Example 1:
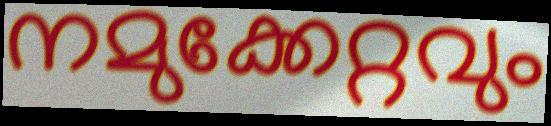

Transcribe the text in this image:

നമുക്കേറ്റവും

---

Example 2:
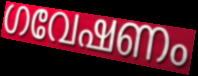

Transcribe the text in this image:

ഗവേഷണം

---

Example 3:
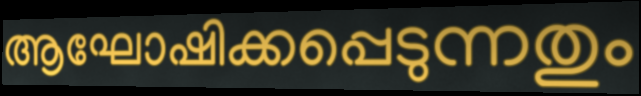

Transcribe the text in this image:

ആഘോഷിക്കപ്പെടുന്നതും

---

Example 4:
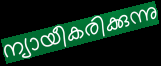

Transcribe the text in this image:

ന്യായീകരിക്കുന്നു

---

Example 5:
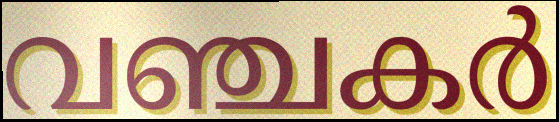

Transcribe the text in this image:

വഞ്ചകർ